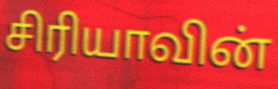
சிரியாவின்